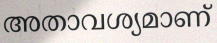
അതാവശ്യമാണ്